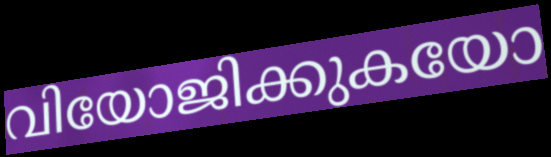
വിയോജിക്കുകയോ